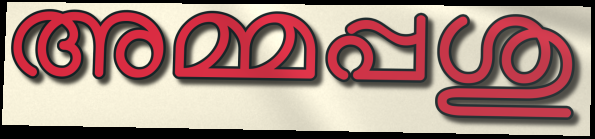
അമ്മപ്പശു